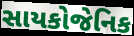
સાયકોજેનિક